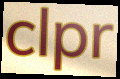
clpr